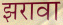
झरावा